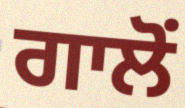
ਗਾਲੋਂ